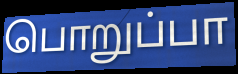
பொறுப்பா